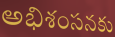
అభిశంసనకు